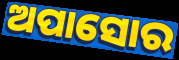
ଅପାସୋର